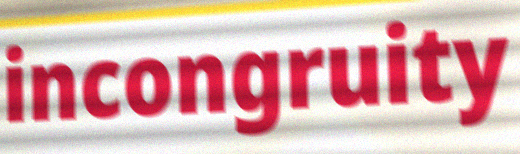
incongruity